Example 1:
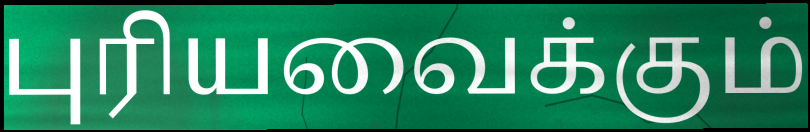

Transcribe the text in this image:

புரியவைக்கும்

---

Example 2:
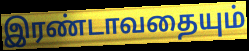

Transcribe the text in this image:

இரண்டாவதையும்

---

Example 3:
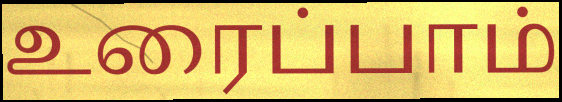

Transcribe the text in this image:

உரைப்பாம்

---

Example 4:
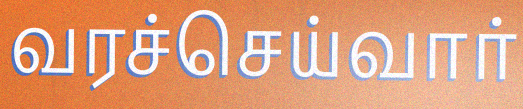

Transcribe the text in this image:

வரச்செய்வார்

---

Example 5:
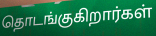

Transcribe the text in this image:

தொடங்குகிறார்கள்